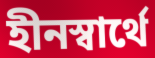
হীনস্বার্থে